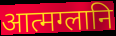
आत्मग्लानि